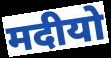
मदीयो